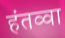
हंतव्वा